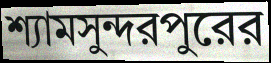
শ্যামসুন্দরপুরের